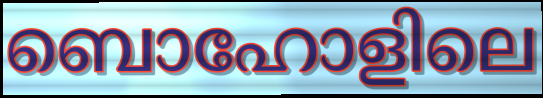
ബൊഹോളിലെ